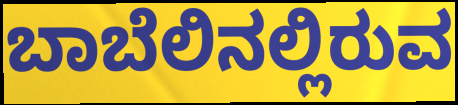
ಬಾಬೆಲಿನಲ್ಲಿರುವ